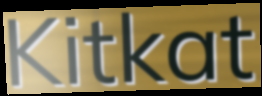
Kitkat